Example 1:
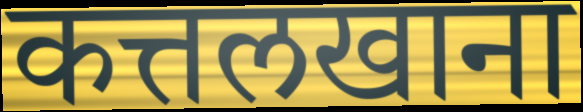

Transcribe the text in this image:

कत्तलखाना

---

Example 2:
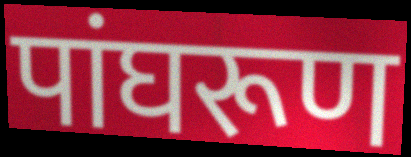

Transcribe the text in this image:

पांघरूण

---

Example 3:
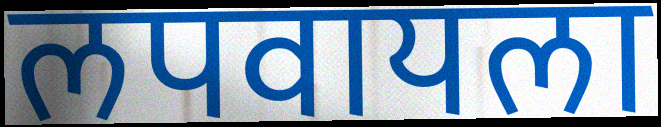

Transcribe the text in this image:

लपवायला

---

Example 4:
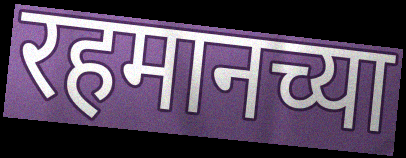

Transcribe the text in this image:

रहमानच्या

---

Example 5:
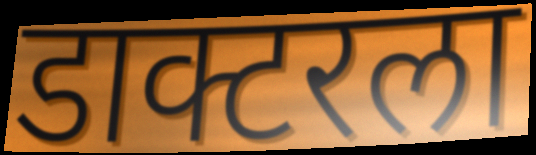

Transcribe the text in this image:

डाक्टरला